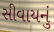
સીવાયનું